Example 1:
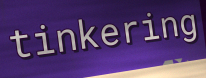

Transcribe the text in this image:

tinkering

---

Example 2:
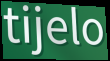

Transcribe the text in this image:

tijelo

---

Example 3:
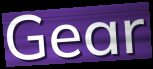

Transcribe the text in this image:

Gear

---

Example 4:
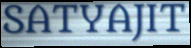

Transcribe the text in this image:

SATYAJIT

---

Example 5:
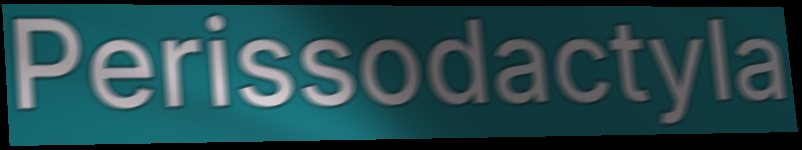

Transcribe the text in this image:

Perissodactyla